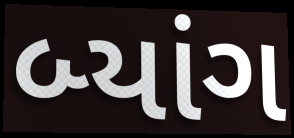
બ્યાંગ